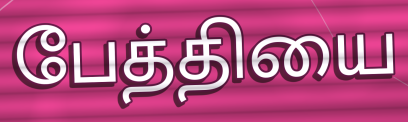
பேத்தியை